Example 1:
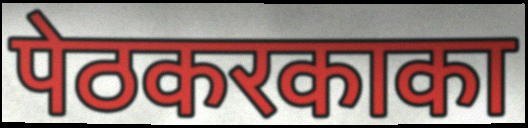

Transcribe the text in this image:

पेठकरकाका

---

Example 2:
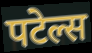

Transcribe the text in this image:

पटेल्स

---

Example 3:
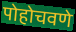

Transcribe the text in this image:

पोहोचवणे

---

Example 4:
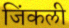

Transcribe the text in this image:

जिंकली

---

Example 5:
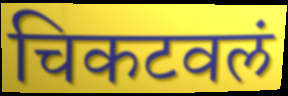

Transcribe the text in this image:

चिकटवलं